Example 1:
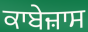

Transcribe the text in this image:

ਕਾਬੇਜ਼ਾਸ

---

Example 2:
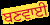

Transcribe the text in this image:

ਬਣਵਾਈ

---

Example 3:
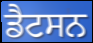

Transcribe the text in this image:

ਡੈਟਸਨ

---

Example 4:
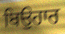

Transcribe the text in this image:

ਬਿਉਹਾਰ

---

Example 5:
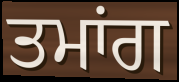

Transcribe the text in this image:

ਤਮਾਂਗ